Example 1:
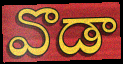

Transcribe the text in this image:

వొడా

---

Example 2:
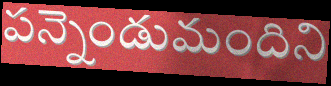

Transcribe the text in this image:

పన్నెండుమందిని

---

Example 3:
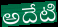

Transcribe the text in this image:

అదేటి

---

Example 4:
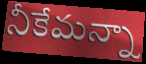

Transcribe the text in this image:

నీకేమన్నా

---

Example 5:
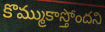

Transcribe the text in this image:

కొమ్ముకాస్తోందని